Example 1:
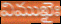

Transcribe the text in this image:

విముఖైః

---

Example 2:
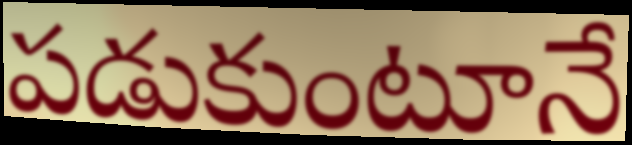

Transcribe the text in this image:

పడుకుంటూనే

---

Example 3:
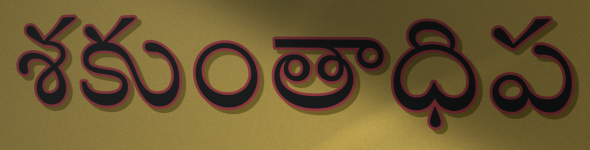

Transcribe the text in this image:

శకుంతాధిప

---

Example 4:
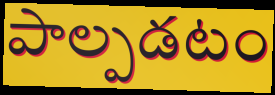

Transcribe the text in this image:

పాల్పడటం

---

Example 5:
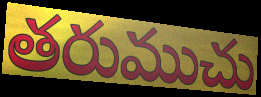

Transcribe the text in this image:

తరుముచు